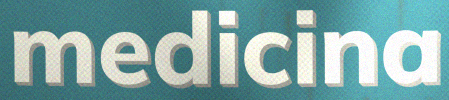
medicina